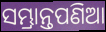
ସମ୍ଭ୍ରାନ୍ତପଣିଆ